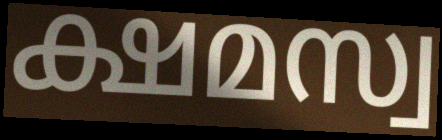
ക്ഷമസ്വ